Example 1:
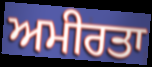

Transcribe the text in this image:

ਅਮੀਰਤਾ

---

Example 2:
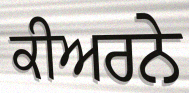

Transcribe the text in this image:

ਕੀਅਰਨੇ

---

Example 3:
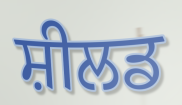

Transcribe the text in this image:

ਸ਼ੀਲਡ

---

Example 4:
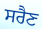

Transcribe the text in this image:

ਸਰੈਣ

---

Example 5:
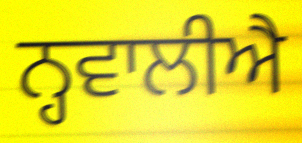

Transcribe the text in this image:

ਨ੍ਹਵਾਲੀਐ